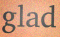
glad